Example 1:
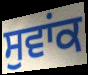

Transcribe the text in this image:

ਸੁਵਾਂਕ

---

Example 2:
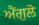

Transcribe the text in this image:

ਐਂਗੁਲੋ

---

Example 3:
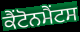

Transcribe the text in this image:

ਕੈਂਟੋਨਮੈਂਟਸ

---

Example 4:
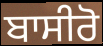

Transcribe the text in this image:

ਬਾਸੀਰੋ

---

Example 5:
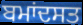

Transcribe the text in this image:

ਬਮਾਂਦਸਤ